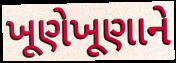
ખૂણેખૂણાને